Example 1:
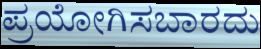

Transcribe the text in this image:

ಪ್ರಯೋಗಿಸಬಾರದು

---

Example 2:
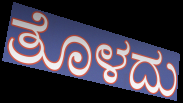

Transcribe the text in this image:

ತೊಳದು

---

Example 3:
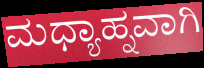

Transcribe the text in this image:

ಮಧ್ಯಾಹ್ನವಾಗಿ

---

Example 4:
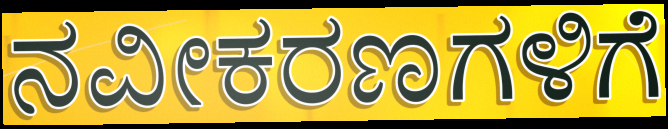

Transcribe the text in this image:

ನವೀಕರಣಗಳಿಗೆ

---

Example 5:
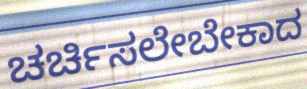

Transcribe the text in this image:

ಚರ್ಚಿಸಲೇಬೇಕಾದ